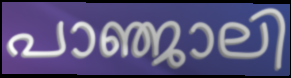
പാഞ്ജാലി